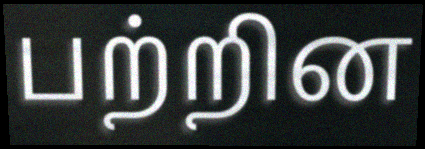
பற்றின